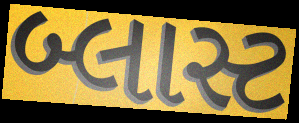
બ્લાસ્ટ